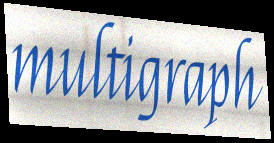
multigraph